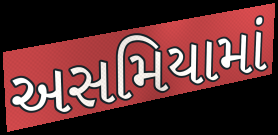
અસમિયામાં